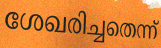
ശേഖരിച്ചതെന്ന്